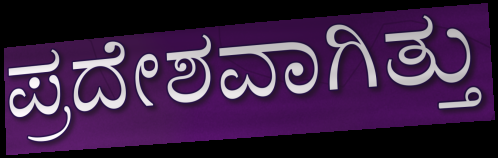
ಪ್ರದೇಶವಾಗಿತ್ತು